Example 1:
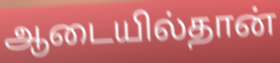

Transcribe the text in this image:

ஆடையில்தான்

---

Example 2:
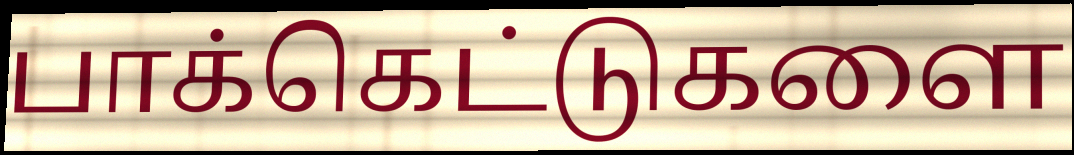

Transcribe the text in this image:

பாக்கெட்டுகளை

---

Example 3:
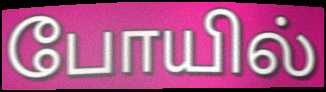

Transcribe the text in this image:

போயில்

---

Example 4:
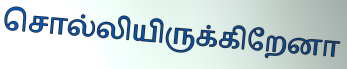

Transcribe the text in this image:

சொல்லியிருக்கிறேனா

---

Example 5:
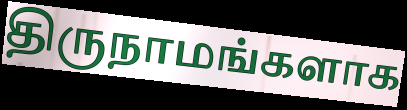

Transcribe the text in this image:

திருநாமங்களாக